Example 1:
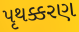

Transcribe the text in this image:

પૃથક્કરણ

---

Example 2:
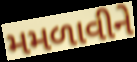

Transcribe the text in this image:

મમળાવીને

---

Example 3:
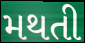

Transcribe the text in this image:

મથતી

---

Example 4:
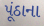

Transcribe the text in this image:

પૂંઠાના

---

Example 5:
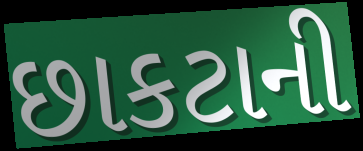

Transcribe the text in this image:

છાકટાની